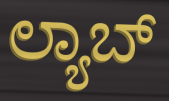
ಲ್ಯಾಬ್